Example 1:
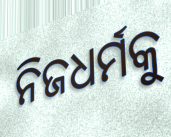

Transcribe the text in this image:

ନିଜଧର୍ମକୁ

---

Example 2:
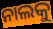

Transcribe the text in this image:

ନାଲକୁ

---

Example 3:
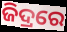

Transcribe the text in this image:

ଜିଦ୍ରରେ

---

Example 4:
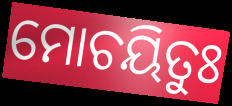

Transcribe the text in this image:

ମୋଚୟିତୁଃ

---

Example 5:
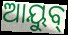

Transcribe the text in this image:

ଆୟୁବ୍